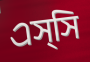
এস্‌সি